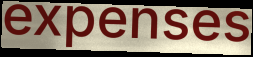
expenses